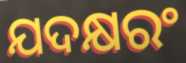
ଯଦକ୍ଷରଂ